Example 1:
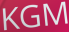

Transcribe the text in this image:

KGM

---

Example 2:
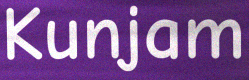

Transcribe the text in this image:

Kunjam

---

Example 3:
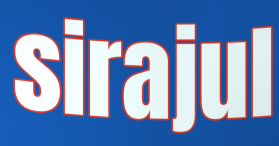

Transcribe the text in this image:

sirajul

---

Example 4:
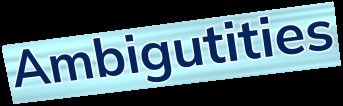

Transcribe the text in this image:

Ambigutities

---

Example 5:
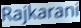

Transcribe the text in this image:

Rajkarani